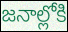
జనాల్లోకి